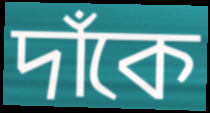
দাঁকে